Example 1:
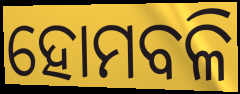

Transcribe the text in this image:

ହୋମବଳି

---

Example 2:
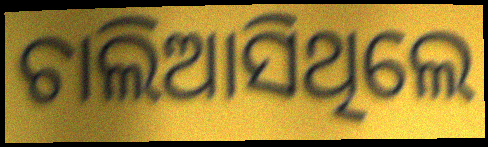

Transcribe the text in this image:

ଚାଲିଆସିଥିଲେ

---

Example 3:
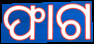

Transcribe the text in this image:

ଫାଗ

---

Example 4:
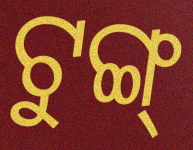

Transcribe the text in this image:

ଟୁଙ୍ଗ୍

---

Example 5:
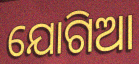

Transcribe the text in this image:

ଯୋଗିଆ